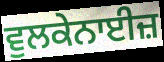
ਵੁਲਕੇਨਾਈਜ਼